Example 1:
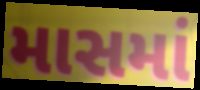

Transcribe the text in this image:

માસમાં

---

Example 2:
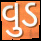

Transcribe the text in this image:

વુડ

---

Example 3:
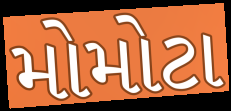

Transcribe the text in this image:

મોમોટા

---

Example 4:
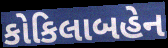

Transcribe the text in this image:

કોકિલાબહેન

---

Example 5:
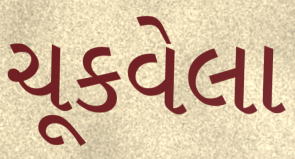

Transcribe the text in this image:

ચૂકવેલા